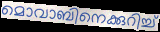
മൊവാബിനെക്കുറിച്ച്